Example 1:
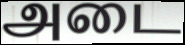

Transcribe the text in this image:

அடை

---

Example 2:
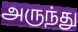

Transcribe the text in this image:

அருந்து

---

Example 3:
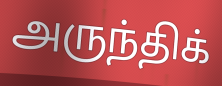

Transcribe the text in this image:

அருந்திக்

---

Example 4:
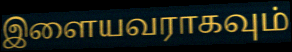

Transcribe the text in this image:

இளையவராகவும்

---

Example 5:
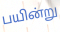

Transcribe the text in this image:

பயின்று